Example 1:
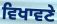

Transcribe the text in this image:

ਵਿਖਾਵਣੇ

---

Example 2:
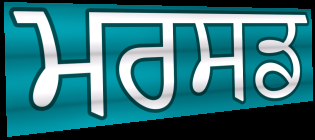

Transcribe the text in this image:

ਮਰਸਡ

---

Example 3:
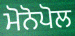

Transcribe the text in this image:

ਮੋਨੋਪੋਲ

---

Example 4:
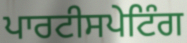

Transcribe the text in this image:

ਪਾਰਟੀਸਪੇਟਿੰਗ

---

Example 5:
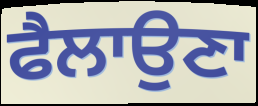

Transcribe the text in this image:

ਫੈਲਾਉਣਾ